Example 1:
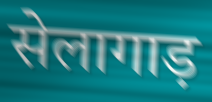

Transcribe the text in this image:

सेलागाड़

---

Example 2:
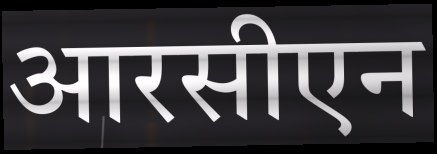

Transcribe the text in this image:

आरसीएन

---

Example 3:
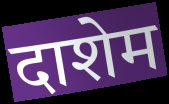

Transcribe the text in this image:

दाशेम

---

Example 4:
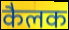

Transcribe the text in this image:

कैलक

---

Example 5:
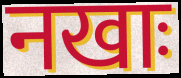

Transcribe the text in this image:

नखाः